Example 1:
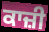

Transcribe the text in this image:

ਕਾਜ਼ੀ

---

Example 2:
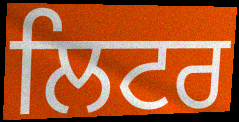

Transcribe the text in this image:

ਲਿਟਰ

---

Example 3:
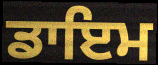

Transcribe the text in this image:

ਡਾਇਮ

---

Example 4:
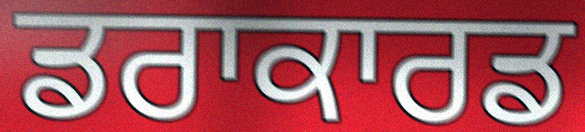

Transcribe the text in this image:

ਡਰਾਕਾਰਡ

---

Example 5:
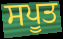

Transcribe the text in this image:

ਸਪੂਤ